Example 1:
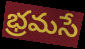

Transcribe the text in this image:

భ్రమసే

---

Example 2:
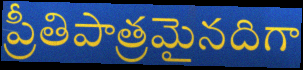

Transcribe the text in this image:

ప్రీతిపాత్రమైనదిగా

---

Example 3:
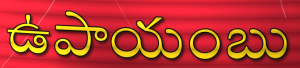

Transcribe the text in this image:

ఉపాయంబు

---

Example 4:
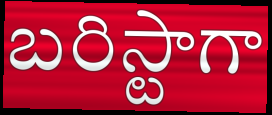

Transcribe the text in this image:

బరిస్టాగా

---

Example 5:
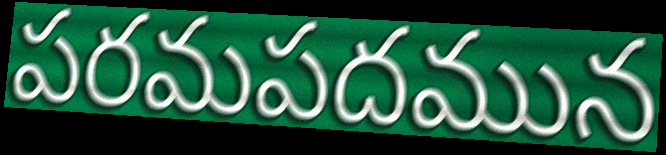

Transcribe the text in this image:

పరమపదమున